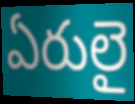
ఏరులై